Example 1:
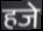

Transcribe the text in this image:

हजे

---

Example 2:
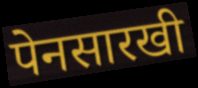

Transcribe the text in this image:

पेनसारखी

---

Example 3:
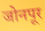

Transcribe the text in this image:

जोनपूर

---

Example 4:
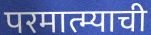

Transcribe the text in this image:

परमात्म्याची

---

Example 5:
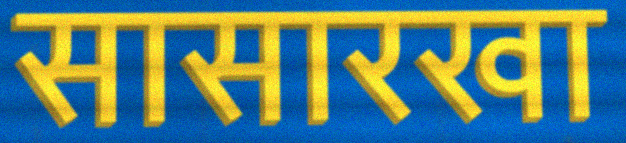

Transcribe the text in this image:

सासारखा